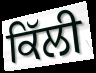
ਕਿੱਲੀ